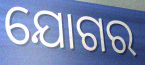
ଯୋଗର